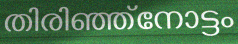
തിരിഞ്ഞ്നോട്ടം